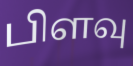
பிளவு